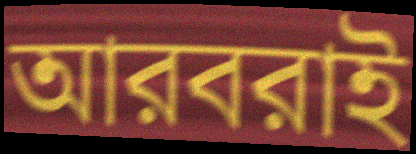
আরবরাই